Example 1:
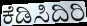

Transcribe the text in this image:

ಕೆಡಿಸಿದಿರಿ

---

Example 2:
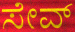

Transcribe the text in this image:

ಸೇವ್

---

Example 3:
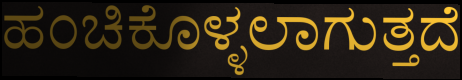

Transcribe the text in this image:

ಹಂಚಿಕೊಳ್ಳಲಾಗುತ್ತದೆ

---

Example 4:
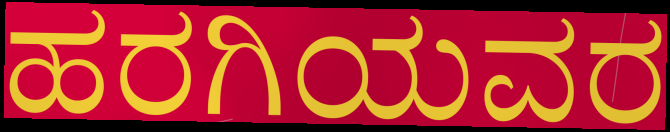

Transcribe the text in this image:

ಹರಗಿಯವರ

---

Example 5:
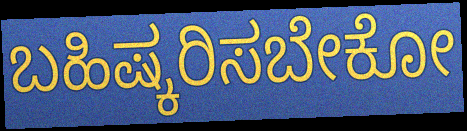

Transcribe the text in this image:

ಬಹಿಷ್ಕರಿಸಬೇಕೋ